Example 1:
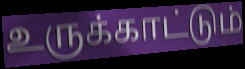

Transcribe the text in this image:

உருக்காட்டும்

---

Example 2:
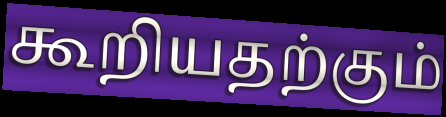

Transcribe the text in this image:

கூறியதற்கும்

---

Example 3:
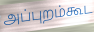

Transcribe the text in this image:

அப்புறம்கூட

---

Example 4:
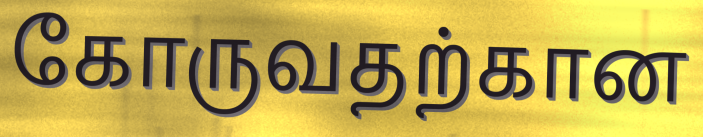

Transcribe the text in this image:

கோருவதற்கான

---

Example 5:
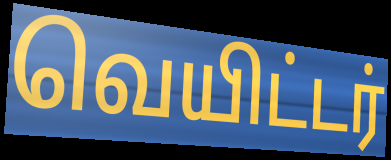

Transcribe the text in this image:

வெயிட்டர்